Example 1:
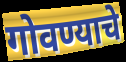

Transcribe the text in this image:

गोवण्याचे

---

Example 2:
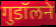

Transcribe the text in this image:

गुडॉलने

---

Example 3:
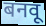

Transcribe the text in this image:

बनवू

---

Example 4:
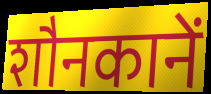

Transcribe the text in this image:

शौनकानें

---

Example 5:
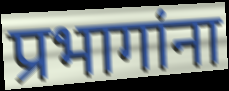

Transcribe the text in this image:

प्रभागांना